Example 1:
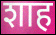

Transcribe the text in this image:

शाह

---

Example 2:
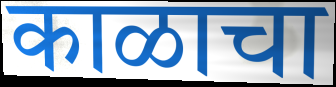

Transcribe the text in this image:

काळाचा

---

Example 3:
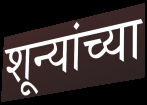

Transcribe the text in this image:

शून्यांच्या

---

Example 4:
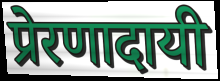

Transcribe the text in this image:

प्रेरणादायी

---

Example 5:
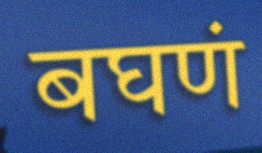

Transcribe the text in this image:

बघणं